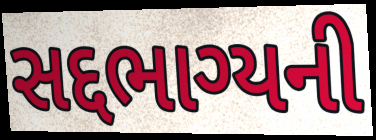
સદ્દભાગ્યની